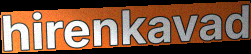
hirenkavad